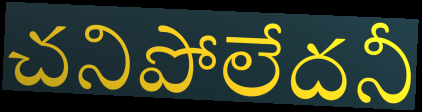
చనిపోలేదనీ